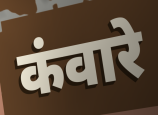
कंवारे